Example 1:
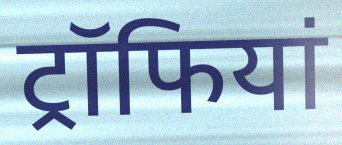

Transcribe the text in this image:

ट्रॉफियां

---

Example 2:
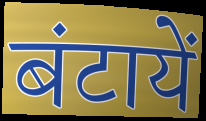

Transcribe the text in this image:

बंटायें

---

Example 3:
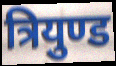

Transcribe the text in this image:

त्रियुण्ड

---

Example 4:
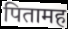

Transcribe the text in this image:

पितामह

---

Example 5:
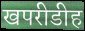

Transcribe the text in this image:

खपरीडीह